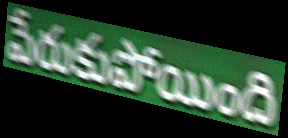
పేరుకుపోయింది